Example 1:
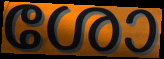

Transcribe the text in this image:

ശോ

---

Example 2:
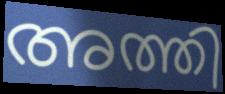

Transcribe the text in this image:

അത്തി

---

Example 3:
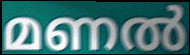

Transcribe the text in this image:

മണൽ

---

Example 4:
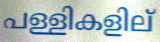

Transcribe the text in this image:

പള്ളികളില്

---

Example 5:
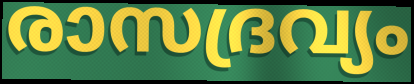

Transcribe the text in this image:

രാസദ്രവ്യം